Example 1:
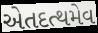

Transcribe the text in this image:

એતદત્થમેવ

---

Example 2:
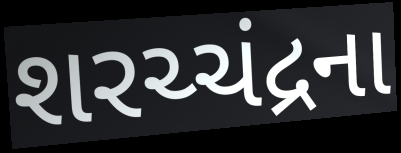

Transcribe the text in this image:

શરચ્ચંદ્રના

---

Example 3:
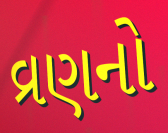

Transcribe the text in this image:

વ્રણનો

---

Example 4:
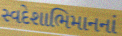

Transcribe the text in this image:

સ્વદેશાભિમાનનાં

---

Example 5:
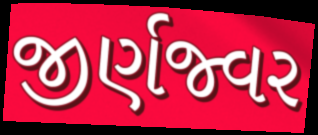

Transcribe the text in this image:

જીર્ણજ્વર